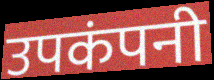
उपकंपनी